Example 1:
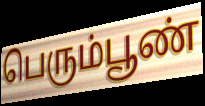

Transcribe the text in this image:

பெரும்பூண்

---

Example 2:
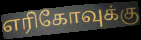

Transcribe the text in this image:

எரிகோவுக்கு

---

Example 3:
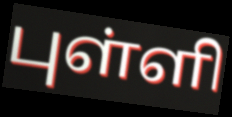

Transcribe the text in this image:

புள்ளி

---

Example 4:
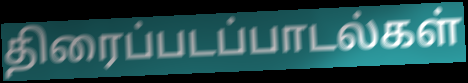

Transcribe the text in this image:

திரைப்படப்பாடல்கள்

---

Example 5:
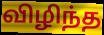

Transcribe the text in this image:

விழிந்த